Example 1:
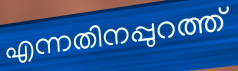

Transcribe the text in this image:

എന്നതിനപ്പുറത്ത്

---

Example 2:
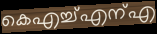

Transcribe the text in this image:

കെഎച്ച്എന്എ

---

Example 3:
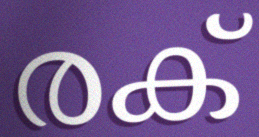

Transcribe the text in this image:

രക്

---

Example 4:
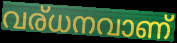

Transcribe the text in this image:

വര്ധനവാണ്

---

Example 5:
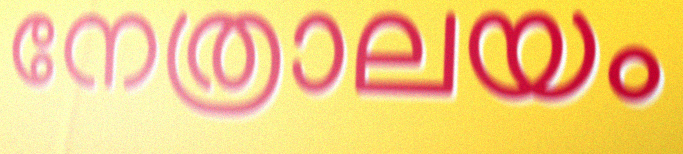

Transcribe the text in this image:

നേത്രാലയം